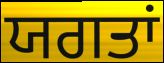
ਯਗਤਾਂ